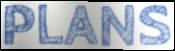
PLANS